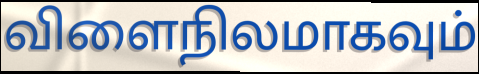
விளைநிலமாகவும்